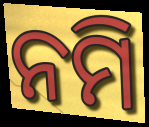
ନମି